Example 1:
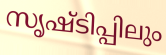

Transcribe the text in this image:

സൃഷ്ടിപ്പിലും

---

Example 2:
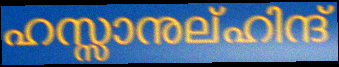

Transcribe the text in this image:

ഹസ്സാനുല്ഹിന്ദ്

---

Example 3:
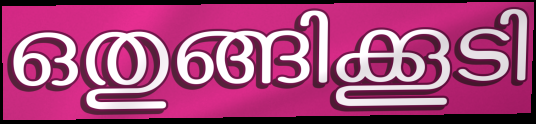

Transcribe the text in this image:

ഒതുങ്ങിക്കൂടി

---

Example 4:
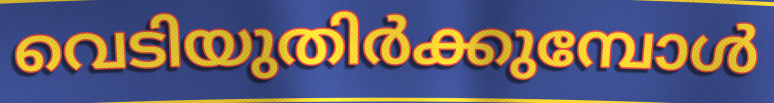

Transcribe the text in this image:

വെടിയുതിർക്കുമ്പോൾ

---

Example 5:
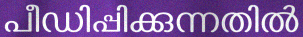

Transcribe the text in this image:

പീഡിപ്പിക്കുന്നതിൽ